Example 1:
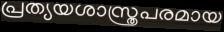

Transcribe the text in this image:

പ്രത്യയശാസ്ത്രപരമായ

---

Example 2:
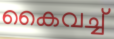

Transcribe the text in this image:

കൈവച്ച്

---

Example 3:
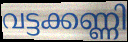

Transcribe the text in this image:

വട്ടക്കണ്ണി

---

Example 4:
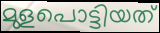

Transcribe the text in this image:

മുളപൊട്ടിയത്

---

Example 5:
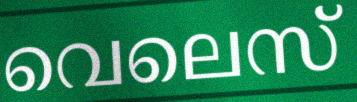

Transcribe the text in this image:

വെലെസ്